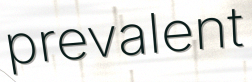
prevalent